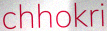
chhokri